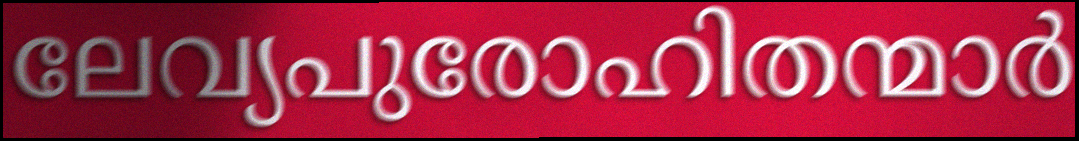
ലേവ്യപുരോഹിതന്മാർ